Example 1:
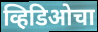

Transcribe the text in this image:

व्हिडिओचा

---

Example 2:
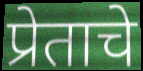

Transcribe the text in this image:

प्रेताचे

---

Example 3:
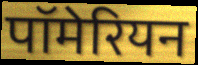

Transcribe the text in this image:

पॉमेरियन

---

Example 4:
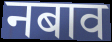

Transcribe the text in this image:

नबाव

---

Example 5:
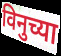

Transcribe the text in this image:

विनुच्या